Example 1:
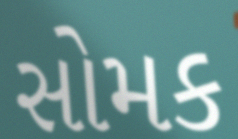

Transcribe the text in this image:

સોમક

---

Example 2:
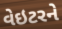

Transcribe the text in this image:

વેઇટરને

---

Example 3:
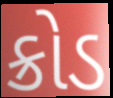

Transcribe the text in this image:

ક્રોડ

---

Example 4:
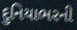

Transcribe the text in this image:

દુનિયાભરની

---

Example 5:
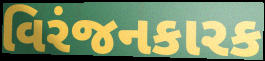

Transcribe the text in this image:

વિરંજનકારક